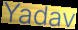
Yadav